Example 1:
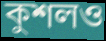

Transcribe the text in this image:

কুশলও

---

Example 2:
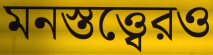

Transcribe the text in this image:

মনস্তত্ত্বেরও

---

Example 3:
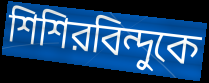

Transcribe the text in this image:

শিশিরবিন্দুকে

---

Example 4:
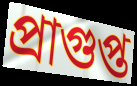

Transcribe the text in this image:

প্রাগুপ্ত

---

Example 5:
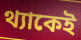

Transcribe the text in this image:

থ্যাকেই